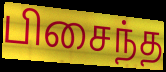
பிசைந்த